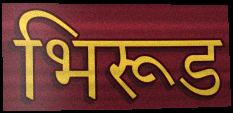
भिरूड